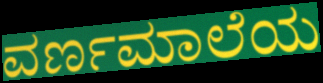
ವರ್ಣಮಾಲೆಯ